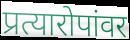
प्रत्यारोपांवर